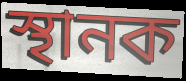
স্থানক